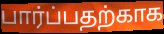
பார்ப்பதற்காக